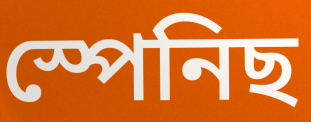
স্পেনিছ